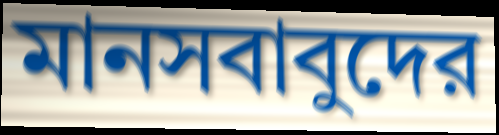
মানসবাবুদের